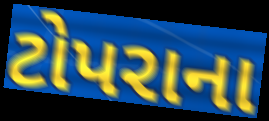
ટોપરાના